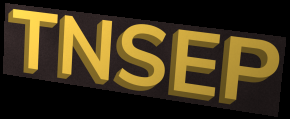
TNSEP